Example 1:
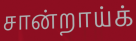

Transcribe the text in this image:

சான்றாய்க்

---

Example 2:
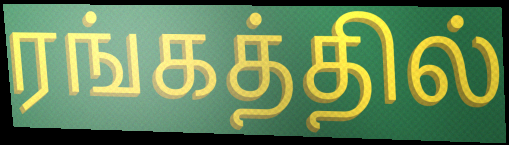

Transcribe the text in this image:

ரங்கத்தில்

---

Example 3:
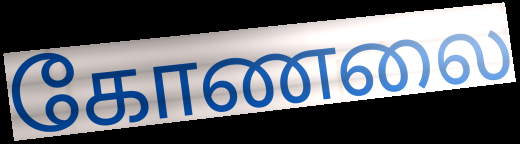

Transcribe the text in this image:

கோணலை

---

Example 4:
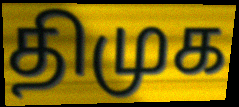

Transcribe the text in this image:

திமுக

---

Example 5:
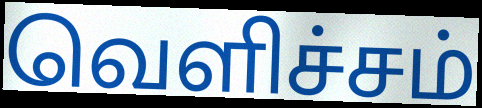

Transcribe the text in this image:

வெளிச்சம்